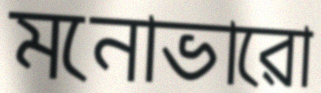
মনোভাৱো